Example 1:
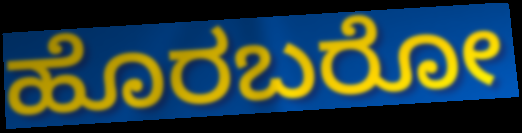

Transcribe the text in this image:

ಹೊರಬರೋ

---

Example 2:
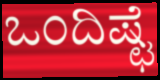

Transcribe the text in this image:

ಒಂದಿಷ್ಟೆ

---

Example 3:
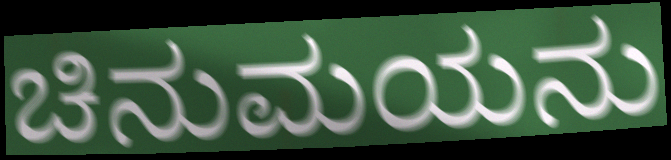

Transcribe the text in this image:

ಚಿನುಮಯನು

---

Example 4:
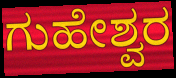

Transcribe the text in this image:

ಗುಹೇಶ್ವರ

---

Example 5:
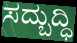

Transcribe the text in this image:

ಸದ್ಬುದ್ಧಿ